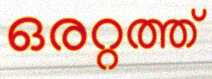
ഒരറ്റത്ത്